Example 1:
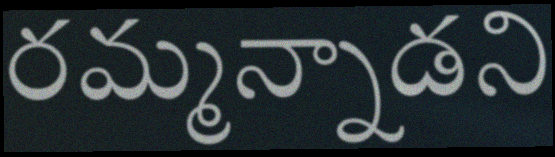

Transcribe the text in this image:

రమ్మన్నాడని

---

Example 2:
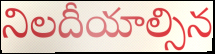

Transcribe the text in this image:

నిలదీయాల్సిన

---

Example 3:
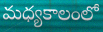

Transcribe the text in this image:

మధ్యకాలంలో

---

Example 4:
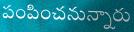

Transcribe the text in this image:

పంపించనున్నారు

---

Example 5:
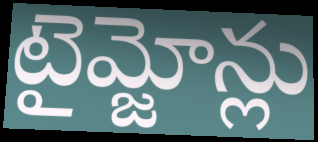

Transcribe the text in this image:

టైమ్జోన్లు